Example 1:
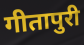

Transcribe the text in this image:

गीतापुरी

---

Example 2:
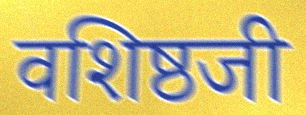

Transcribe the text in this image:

वशिष्ठजी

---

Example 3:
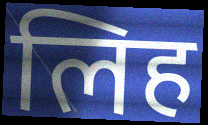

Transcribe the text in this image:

लिह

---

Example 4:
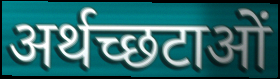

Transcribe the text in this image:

अर्थच्छटाओं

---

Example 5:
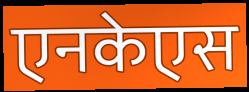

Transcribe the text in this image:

एनकेएस